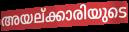
അയല്ക്കാരിയുടെ